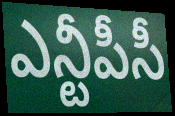
ఎన్టీపీసీ